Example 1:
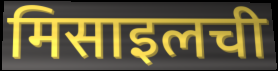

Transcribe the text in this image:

मिसाइलची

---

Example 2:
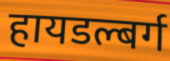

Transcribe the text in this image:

हायडल्बर्ग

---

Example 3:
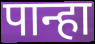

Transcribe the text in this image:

पान्हा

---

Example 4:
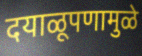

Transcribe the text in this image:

दयाळूपणामुळे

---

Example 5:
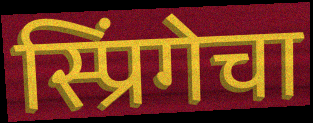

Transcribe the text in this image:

स्प्रिंगेचा